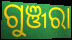
ଗୁଞ୍ଜରା